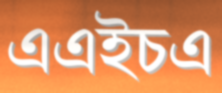
এএইচএ